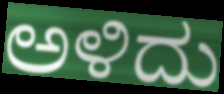
ಅಳಿದು